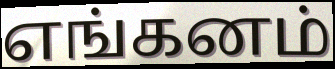
எங்கனம்